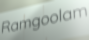
Ramgoolam